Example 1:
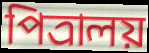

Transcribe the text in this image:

পিত্রালয়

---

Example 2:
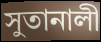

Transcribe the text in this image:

সুতানালী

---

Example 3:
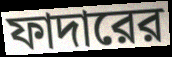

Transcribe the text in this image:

ফাদারের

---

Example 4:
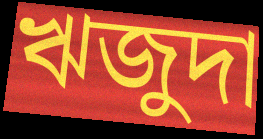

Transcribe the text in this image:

ঋজুদা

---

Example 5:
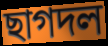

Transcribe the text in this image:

ছাগদল